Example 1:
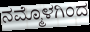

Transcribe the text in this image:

ನಮ್ಮೊಳಗಿಂದ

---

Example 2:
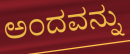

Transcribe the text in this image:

ಅಂದವನ್ನು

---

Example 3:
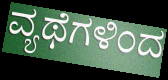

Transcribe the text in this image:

ವ್ಯಥೆಗಳಿಂದ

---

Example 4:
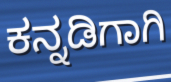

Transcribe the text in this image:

ಕನ್ನಡಿಗಾಗಿ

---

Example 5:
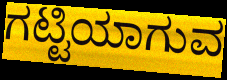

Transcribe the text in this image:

ಗಟ್ಟಿಯಾಗುವ